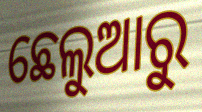
ଛେଲୁଆରୁ